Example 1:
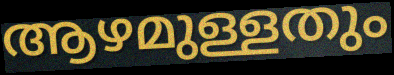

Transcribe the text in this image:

ആഴമുള്ളതും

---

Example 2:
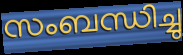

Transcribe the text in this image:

സംബന്ധിച്ചു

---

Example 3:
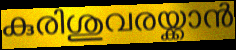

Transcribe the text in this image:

കുരിശുവരയ്ക്കാൻ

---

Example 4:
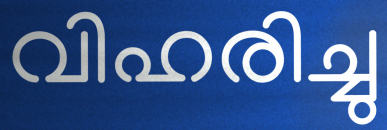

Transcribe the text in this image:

വിഹരിച്ചു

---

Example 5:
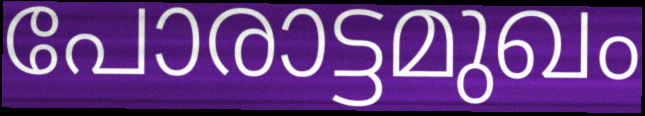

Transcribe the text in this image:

പോരാട്ടമുഖം